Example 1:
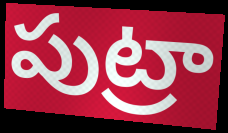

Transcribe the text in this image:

పుట్రా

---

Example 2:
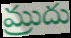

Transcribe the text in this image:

మ్రుదు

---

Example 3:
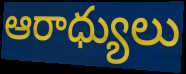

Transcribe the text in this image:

ఆరాధ్యులు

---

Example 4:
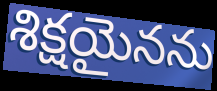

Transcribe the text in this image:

శిక్షయైనను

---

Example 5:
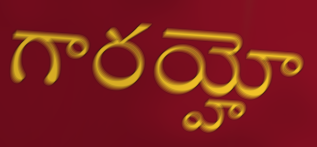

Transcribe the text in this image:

గారయ్హో